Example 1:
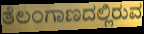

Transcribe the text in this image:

ತೆಲಂಗಾಣದಲ್ಲಿರುವ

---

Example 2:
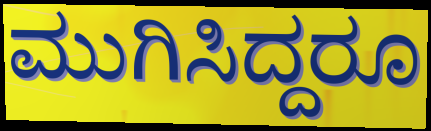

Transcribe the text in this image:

ಮುಗಿಸಿದ್ದರೂ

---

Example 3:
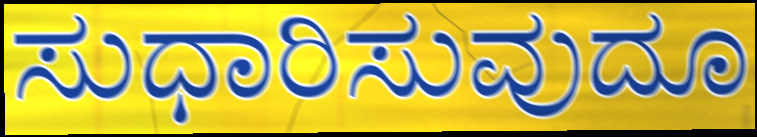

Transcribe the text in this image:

ಸುಧಾರಿಸುವುದೂ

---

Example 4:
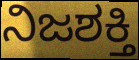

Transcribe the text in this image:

ನಿಜಶಕ್ತಿ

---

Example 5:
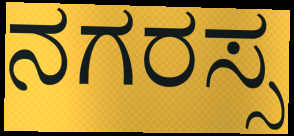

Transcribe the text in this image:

ನಗರಸ್ಸ